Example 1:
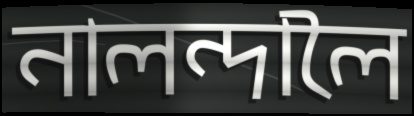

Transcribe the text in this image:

নালন্দালৈ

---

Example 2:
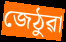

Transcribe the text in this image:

জেঠুৱা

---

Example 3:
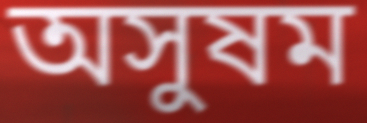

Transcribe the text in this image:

অসুষম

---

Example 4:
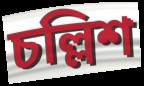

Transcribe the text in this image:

চল্লিশ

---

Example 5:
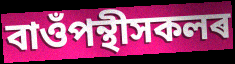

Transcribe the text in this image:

বাওঁপন্থীসকলৰ